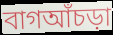
বাগআঁচড়া